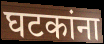
घटकांना